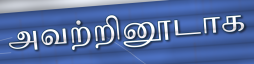
அவற்றினூடாக